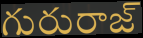
గురురాజ్